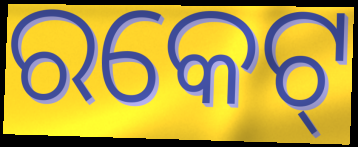
ରକେଟ୍